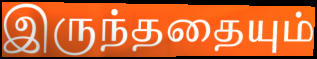
இருந்ததையும்